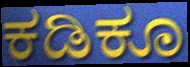
ಕಡಿಕೂ